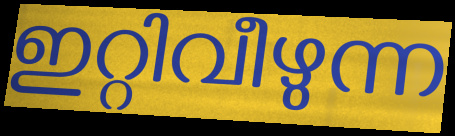
ഇറ്റിവീഴുന്ന